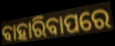
ବାହାରିବାପରେ